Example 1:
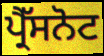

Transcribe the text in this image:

ਪ੍ਰੈੱਸਨੋਟ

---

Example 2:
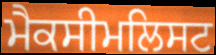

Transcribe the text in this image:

ਮੈਕਸੀਮਲਿਸਟ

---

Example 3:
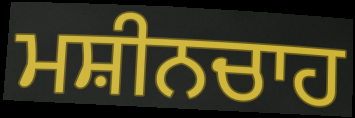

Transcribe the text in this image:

ਮਸ਼ੀਨਚਾਹ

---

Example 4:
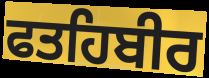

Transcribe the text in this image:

ਫਤਹਿਬੀਰ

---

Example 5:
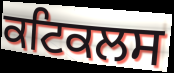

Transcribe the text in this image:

ਕਟਿਕਲਸ